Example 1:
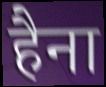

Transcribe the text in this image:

हैना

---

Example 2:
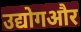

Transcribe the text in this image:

उद्योगऔर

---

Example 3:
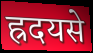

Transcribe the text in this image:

ह्रदयसे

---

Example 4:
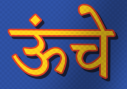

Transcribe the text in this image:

ऊंचे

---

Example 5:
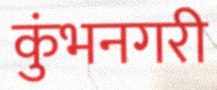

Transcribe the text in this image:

कुंभनगरी